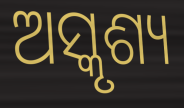
ଅସ୍କୃଶ୍ୟ